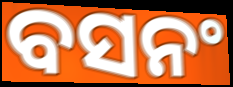
ବସନଂ